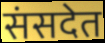
संसदेत